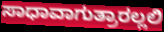
ಸಾಧಾವಾಗುತ್ರಾರಲ್ಲಲಿ